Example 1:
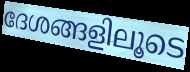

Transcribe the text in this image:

ദേശങ്ങളിലൂടെ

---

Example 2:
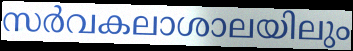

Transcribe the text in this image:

സർവകലാശാലയിലും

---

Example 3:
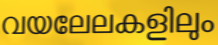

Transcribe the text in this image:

വയലേലകളിലും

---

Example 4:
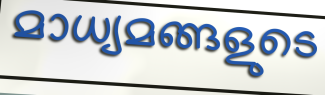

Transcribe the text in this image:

മാധ്യമങ്ങളുടെ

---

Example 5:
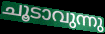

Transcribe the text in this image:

ചൂടാവുന്നു